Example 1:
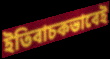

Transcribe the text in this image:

ইতিবাচকভাবেই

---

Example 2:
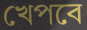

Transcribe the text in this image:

খেপবে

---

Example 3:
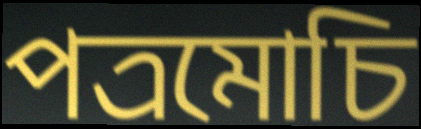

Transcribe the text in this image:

পত্রমোচি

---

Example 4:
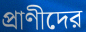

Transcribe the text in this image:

প্রাণীদের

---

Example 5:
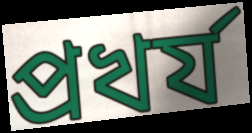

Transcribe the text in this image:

প্রখর্য